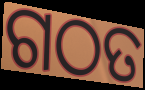
ଗଠତ